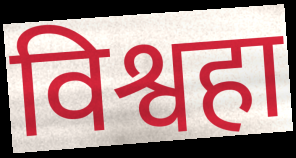
विश्वहा